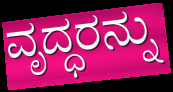
ವೃದ್ಧರನ್ನು